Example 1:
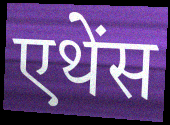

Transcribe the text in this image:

एथेंस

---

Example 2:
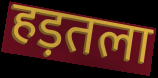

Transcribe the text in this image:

हड़तला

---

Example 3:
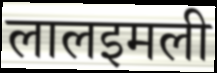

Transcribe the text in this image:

लालइमली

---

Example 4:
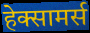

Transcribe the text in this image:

हेक्सामर्स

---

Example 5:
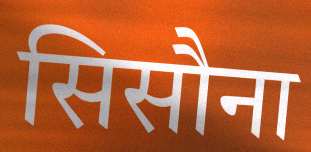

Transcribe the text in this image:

सिसौना